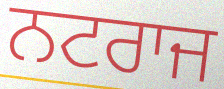
ਨਟਰਾਜ